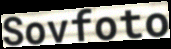
Sovfoto